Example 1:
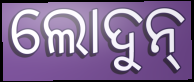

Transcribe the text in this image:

ଲୋଦୁନ୍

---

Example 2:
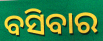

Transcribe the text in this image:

ବସିବାର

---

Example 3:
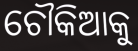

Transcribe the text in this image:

ଚୌକିଆକୁ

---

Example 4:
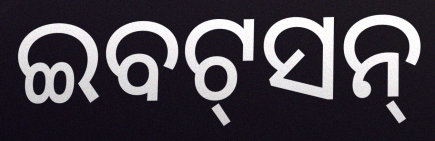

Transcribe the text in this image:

ଇବଟ୍‌ସନ୍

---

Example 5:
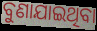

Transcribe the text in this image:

ବୁଣାଯାଇଥିବା